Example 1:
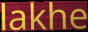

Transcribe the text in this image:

lakhe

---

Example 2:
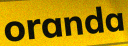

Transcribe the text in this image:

oranda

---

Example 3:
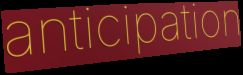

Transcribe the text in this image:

anticipation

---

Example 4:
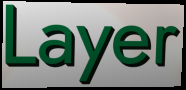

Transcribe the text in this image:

Layer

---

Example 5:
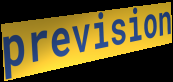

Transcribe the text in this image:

prevision